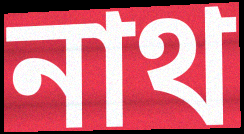
নাথ